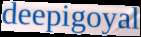
deepigoyal